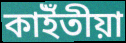
কাইঁতীয়া